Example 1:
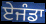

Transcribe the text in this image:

ਏਜੰਡਾ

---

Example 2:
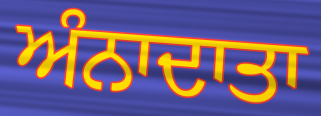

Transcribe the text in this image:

ਅੰਨਾਦਾਤਾ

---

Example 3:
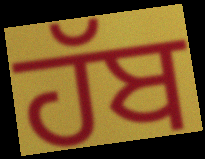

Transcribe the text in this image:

ਹੱਬ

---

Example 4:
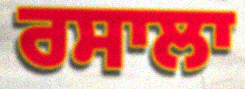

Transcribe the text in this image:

ਰਸਾਲਾ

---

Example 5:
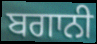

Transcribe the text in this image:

ਬਗਾਨੀ